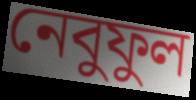
নেবুফুল